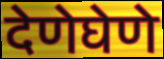
देणेघेणे